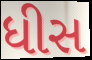
ધીસ